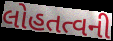
લોહતત્વની